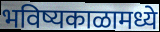
भविष्यकाळामध्ये